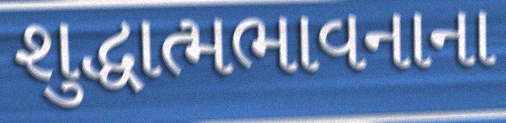
શુદ્ધાત્મભાવનાના